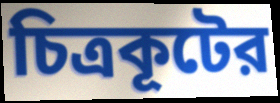
চিত্রকূটের